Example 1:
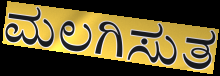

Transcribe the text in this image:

ಮಲಗಿಸುತ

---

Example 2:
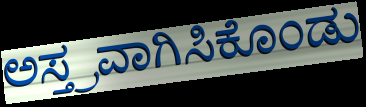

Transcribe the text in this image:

ಅಸ್ತ್ರವಾಗಿಸಿಕೊಂಡು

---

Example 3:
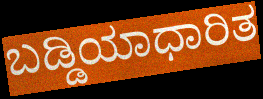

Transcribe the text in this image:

ಬಡ್ಡಿಯಾಧಾರಿತ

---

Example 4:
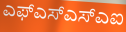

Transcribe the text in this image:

ಎಫ್ಎಸ್ಎಸ್ಎಐ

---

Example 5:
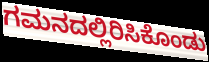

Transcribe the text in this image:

ಗಮನದಲ್ಲಿರಿಸಿಕೊಂಡು